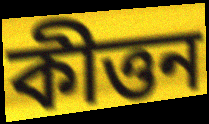
কীত্তন